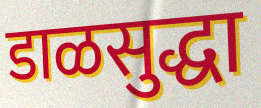
डाळसुद्धा